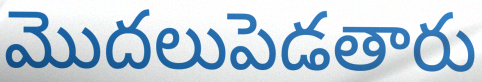
మొదలుపెడతారు